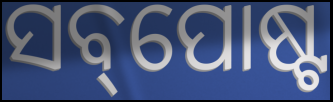
ସବ୍‌ପୋଷ୍ଟ